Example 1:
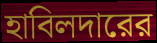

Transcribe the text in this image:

হাবিলদারের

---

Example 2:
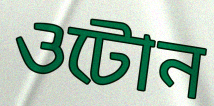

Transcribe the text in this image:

ওটোন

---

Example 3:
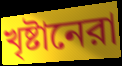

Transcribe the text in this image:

খৃষ্টানেরা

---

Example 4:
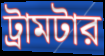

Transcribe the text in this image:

ট্রামটার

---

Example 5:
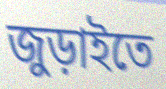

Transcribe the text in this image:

জুড়াইতে